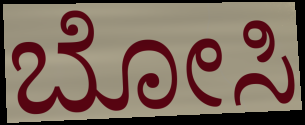
ಬೋಸಿ